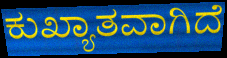
ಕುಖ್ಯಾತವಾಗಿದೆ